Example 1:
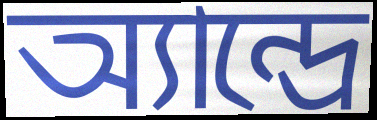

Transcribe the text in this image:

অ্যান্দ্রে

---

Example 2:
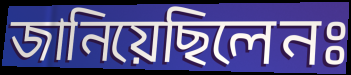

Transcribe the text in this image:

জানিয়েছিলেনঃ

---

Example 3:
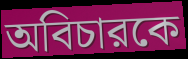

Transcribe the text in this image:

অবিচারকে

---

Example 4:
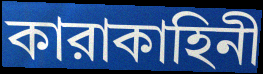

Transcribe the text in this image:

কারাকাহিনী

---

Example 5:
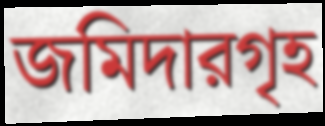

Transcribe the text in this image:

জমিদারগৃহ